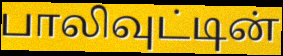
பாலிவுட்டின்